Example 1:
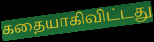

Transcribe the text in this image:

கதையாகிவிட்டது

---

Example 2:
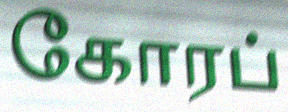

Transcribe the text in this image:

கோரப்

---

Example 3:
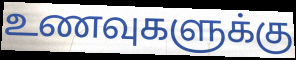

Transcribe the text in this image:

உணவுகளுக்கு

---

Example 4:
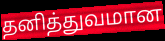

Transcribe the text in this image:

தனித்துவமான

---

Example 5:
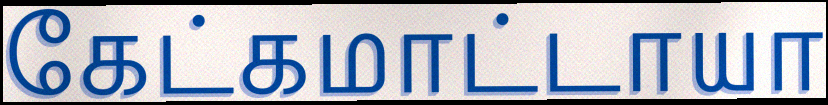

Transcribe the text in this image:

கேட்கமாட்டாயா